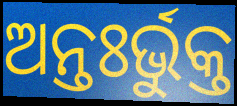
ଅନ୍ତଃର୍ଭୁକ୍ତ